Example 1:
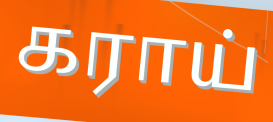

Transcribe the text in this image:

கராய்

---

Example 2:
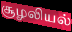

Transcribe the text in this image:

சூழலியல்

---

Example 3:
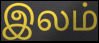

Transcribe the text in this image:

இலம்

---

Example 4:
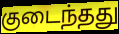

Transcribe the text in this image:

குடைந்தது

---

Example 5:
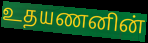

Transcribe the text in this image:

உதயணனின்